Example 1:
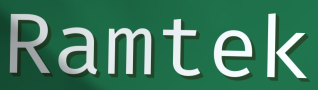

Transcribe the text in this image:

Ramtek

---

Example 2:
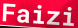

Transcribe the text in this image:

Faizi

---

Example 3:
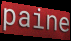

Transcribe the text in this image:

paine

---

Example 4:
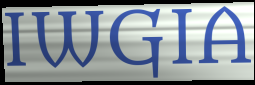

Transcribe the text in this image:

IWGIA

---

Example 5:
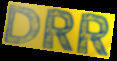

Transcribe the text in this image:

DRR